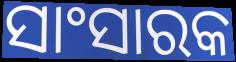
ସାଂସାରକ